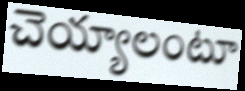
చెయ్యాలంటూ